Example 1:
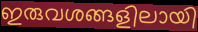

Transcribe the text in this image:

ഇരുവശങ്ങളിലായി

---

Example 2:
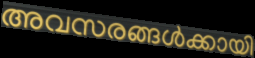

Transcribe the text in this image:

അവസരങ്ങൾക്കായി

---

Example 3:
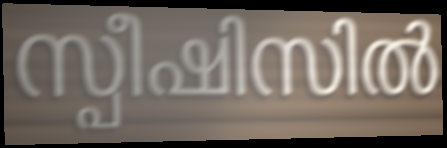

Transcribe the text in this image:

സ്പീഷിസിൽ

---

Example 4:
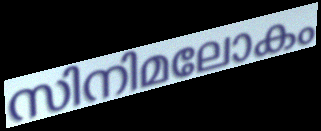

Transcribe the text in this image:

സിനിമലോകം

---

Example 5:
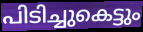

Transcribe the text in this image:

പിടിച്ചുകെട്ടും